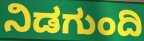
ನಿಡಗುಂದಿ